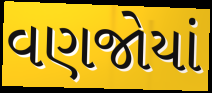
વણજોયાં